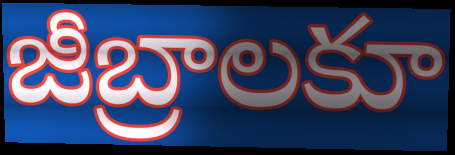
జీబ్రాలకూ